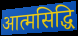
आत्मसिद्धि